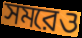
সমরেও